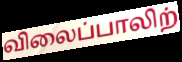
விலைப்பாலிற்